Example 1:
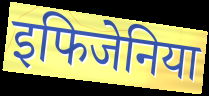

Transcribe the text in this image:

इफिजेनिया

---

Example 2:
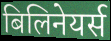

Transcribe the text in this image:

बिलिनेयर्स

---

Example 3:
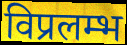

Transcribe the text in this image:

विप्रलम्भ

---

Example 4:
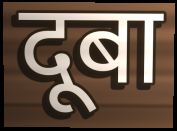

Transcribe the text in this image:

दूबा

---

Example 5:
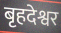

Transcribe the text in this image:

बृहदेश्वर